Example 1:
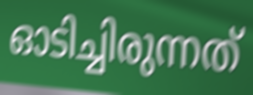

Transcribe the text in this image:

ഓടിച്ചിരുന്നത്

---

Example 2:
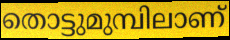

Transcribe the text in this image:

തൊട്ടുമുമ്പിലാണ്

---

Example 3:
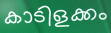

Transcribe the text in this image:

കാടിളക്കം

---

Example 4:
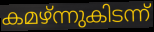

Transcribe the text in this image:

കമഴ്ന്നുകിടന്ന്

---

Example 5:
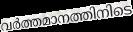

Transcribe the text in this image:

വർത്തമാനത്തിനിടെ